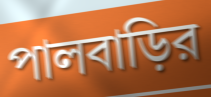
পালবাড়ির